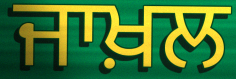
ਜਾਖ਼ਲ